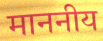
माननीय